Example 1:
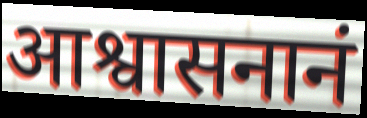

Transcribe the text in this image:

आश्वासनानं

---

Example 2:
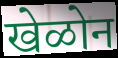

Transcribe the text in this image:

खेळोन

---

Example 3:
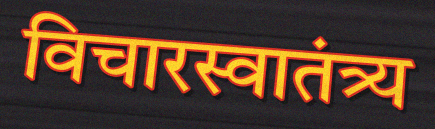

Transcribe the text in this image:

विचारस्वातंत्र्य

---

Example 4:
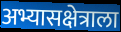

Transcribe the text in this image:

अभ्यासक्षेत्राला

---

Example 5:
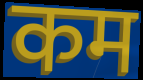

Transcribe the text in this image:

कम